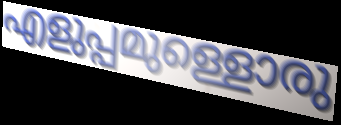
എളുപ്പമുള്ളൊരു